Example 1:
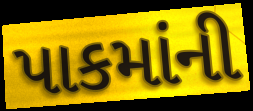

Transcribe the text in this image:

પાકમાંની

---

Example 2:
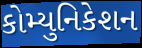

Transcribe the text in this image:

કોમ્યુનિકેશન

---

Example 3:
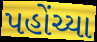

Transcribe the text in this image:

પહોંચ્યા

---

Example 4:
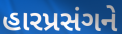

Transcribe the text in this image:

હારપ્રસંગને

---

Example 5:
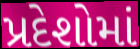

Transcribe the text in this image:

પ્રદેશોમાં